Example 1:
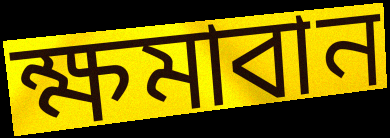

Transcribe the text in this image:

ক্ষমাবান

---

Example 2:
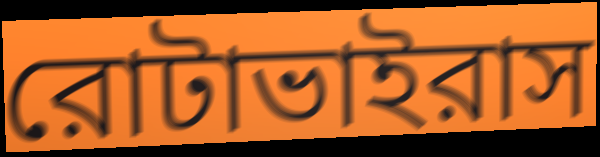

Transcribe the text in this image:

রোটাভাইরাস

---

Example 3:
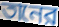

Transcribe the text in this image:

তানের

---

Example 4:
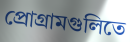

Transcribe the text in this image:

প্রোগ্রামগুলিতে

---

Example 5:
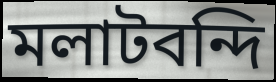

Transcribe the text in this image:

মলাটবন্দি